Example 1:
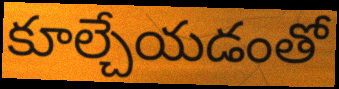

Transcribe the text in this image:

కూల్చేయడంతో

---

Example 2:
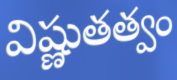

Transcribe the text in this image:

విష్ణుతత్వం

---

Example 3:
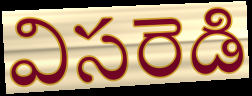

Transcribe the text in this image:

విసరెడి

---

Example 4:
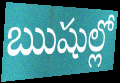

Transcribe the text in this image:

ఋషుల్లో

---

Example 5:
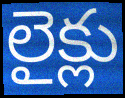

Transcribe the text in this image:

లైక్లు